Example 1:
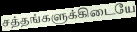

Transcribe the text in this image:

சத்தங்களுக்கிடையே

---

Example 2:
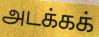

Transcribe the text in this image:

அடக்கக்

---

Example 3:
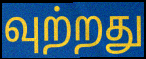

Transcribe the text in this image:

வுற்றது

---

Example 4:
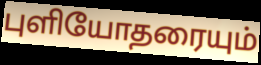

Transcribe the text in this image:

புளியோதரையும்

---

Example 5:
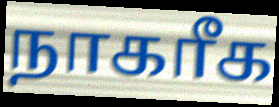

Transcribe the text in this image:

நாகரீக